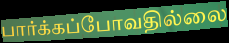
பார்க்கப்போவதில்லை